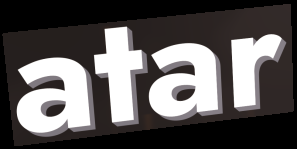
atar